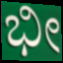
ಭೀ